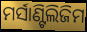
ମର୍ସାଣ୍ଟିଲିଜିମ